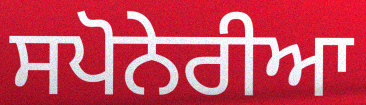
ਸਪੋਨੇਰੀਆ